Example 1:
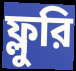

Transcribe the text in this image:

ফ্লুরি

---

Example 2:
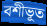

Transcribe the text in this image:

বশীভূত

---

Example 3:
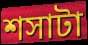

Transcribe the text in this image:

শসাটা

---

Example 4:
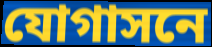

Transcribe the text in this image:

যোগাসনে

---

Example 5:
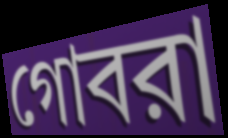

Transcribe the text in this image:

গোবরা